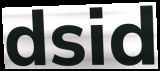
dsid